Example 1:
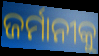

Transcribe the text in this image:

ଜର୍ମାନୀକୁ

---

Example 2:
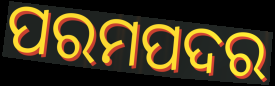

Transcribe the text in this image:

ପରମପଦର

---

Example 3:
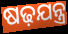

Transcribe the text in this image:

ଷଢ଼ଯନ୍ତ୍ର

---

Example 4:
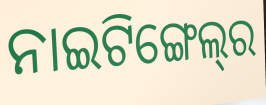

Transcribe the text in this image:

ନାଇଟିଙ୍ଗେଲ୍‌ର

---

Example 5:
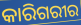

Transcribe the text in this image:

କାରିଗରୀର